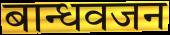
बान्धवजन